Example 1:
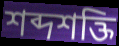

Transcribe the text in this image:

শব্দশক্তি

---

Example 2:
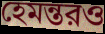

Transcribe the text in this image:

হেমন্তরও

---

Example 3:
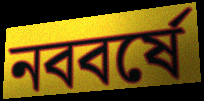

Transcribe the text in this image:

নববর্ষে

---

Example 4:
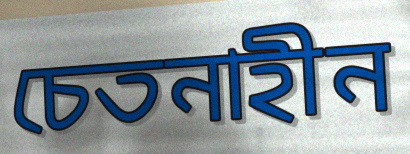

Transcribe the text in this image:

চেতনাহীন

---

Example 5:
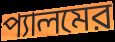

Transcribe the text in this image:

প্যালমের